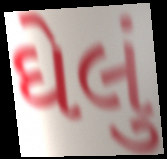
ઘેલું